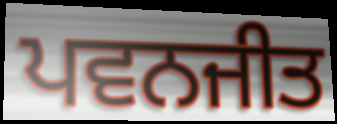
ਪਵਨਜੀਤ